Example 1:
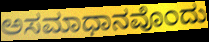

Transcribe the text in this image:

ಅಸಮಾಧಾನವೊಂದು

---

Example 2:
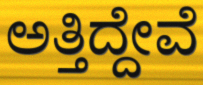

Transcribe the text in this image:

ಅತ್ತಿದ್ದೇವೆ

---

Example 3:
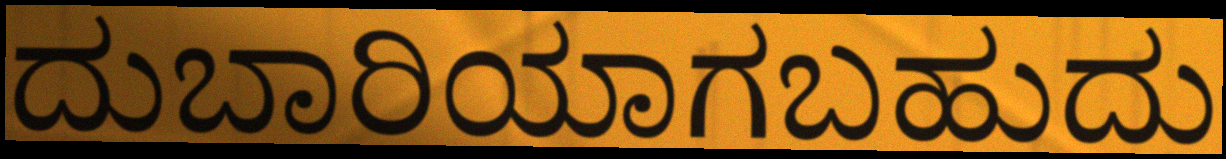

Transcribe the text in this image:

ದುಬಾರಿಯಾಗಬಹುದು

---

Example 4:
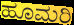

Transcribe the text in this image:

ಹೂಮರಿ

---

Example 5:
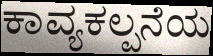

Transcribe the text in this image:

ಕಾವ್ಯಕಲ್ಪನೆಯ